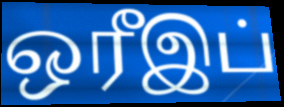
ஒரீஇப்